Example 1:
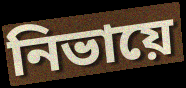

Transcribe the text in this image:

নিভায়ে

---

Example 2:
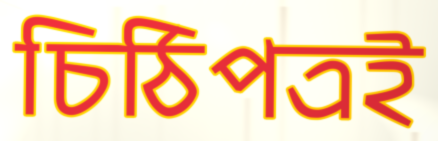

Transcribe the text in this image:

চিঠিপত্রই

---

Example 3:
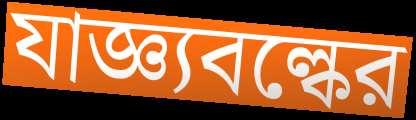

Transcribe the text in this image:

যাজ্ঞ্যবল্কের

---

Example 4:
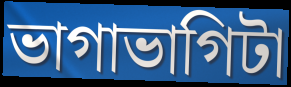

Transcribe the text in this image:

ভাগাভাগিটা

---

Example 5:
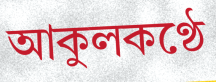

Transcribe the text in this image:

আকুলকণ্ঠে